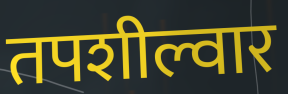
तपशील्वार